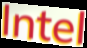
Intel